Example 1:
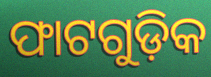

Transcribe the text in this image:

ଫାଟଗୁଡ଼ିକ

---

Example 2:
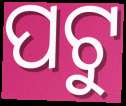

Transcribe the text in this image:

ପଟୁ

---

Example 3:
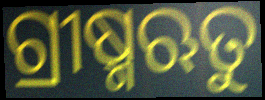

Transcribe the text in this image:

ଗ୍ରୀଷ୍ମଋତୁ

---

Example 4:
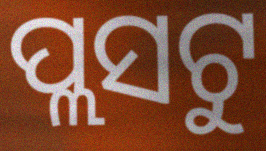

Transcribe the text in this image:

ପ୍ଲସଟୁ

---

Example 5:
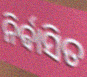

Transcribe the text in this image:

ନିର୍ଵାସିତ